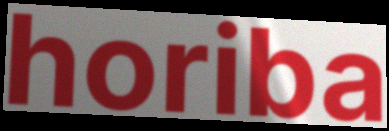
horiba